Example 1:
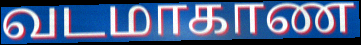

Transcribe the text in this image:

வடமாகாண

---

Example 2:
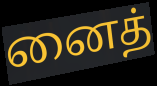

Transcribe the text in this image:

னைத்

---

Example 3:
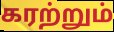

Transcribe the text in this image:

கரற்றும்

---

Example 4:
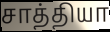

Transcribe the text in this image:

சாத்தியா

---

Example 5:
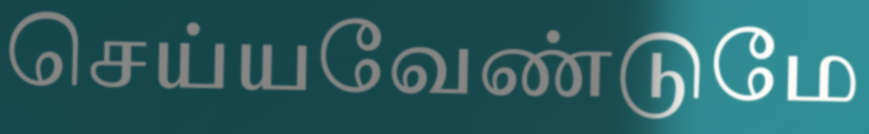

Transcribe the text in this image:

செய்யவேண்டுமே